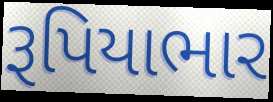
રૂપિયાભાર